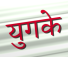
युगके